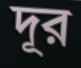
দূর